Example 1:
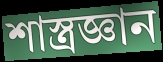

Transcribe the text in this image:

শাস্ত্রজ্ঞান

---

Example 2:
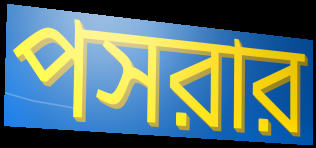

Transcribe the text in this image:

পসরার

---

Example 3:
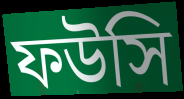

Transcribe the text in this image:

ফউসি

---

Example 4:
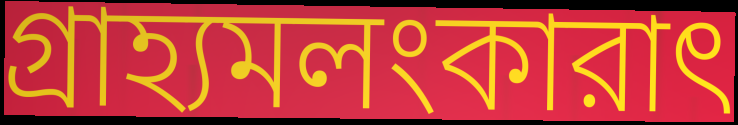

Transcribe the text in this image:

গ্রাহ্যমলংকারাৎ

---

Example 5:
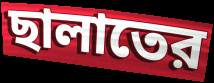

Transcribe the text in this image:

ছালাতের